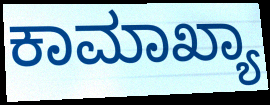
ಕಾಮಾಖ್ಯಾ